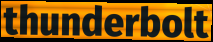
thunderbolt